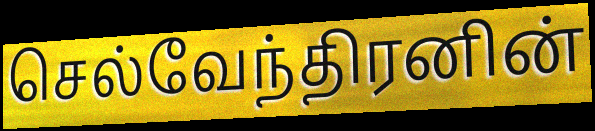
செல்வேந்திரனின்